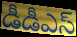
డీడీఎస్